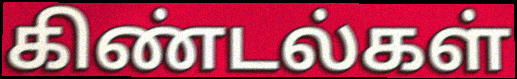
கிண்டல்கள்